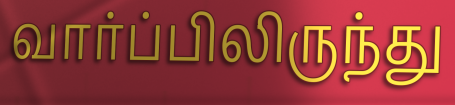
வார்ப்பிலிருந்து